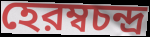
হেরম্বচন্দ্র